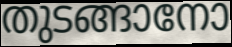
തുടങ്ങാനോ